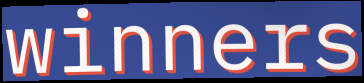
winners